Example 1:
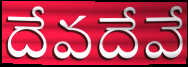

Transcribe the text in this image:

దేవదేవే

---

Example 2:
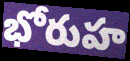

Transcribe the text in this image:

భోరుహ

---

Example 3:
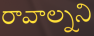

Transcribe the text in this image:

రావాల్నని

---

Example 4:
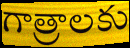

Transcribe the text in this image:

గాత్రాలకు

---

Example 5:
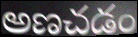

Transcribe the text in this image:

అణచడం